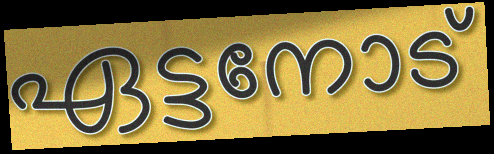
ഏട്ടനോട്